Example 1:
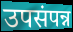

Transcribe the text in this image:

उपसंपन्न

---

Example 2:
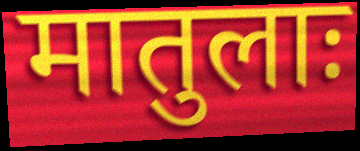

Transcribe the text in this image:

मातुलाः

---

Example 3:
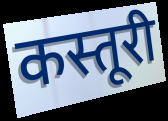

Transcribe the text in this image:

कस्तूरी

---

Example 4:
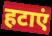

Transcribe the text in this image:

हटाएं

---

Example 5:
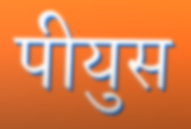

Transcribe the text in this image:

पीयुस